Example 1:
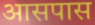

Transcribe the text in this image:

आसपास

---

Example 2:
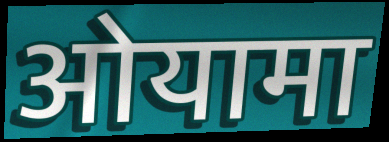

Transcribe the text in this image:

ओयामा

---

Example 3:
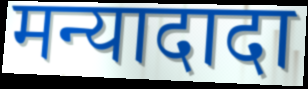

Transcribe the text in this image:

मन्यादादा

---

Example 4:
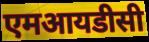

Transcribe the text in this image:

एमआयडीसी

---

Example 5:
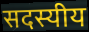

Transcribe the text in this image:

सदस्यीय